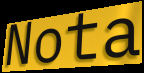
Nota